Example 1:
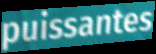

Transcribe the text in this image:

puissantes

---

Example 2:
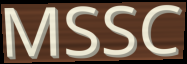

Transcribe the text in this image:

MSSC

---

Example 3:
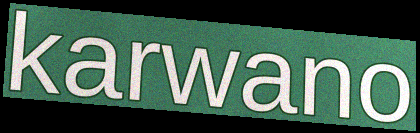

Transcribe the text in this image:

karwano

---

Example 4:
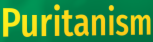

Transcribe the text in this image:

Puritanism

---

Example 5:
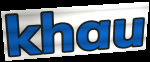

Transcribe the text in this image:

khau